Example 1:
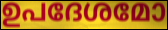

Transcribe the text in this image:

ഉപദേശമോ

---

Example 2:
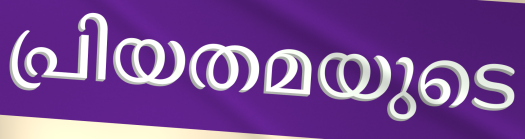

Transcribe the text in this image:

പ്രിയതമയുടെ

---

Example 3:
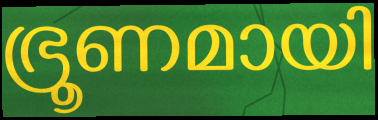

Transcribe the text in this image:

ഭ്രൂണമായി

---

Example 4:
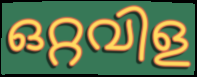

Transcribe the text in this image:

ഒറ്റവിള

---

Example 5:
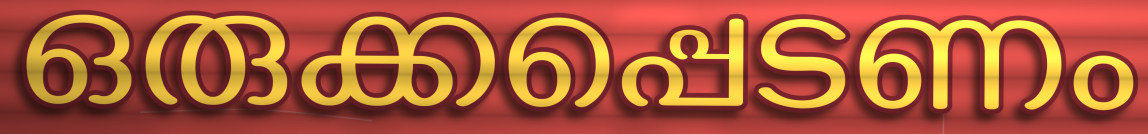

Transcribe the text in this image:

ഒരുക്കപ്പെടണം